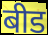
बीड